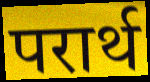
परार्थ